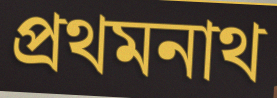
প্রথমনাথ